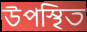
উপস্থিত